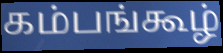
கம்பங்கூழ்